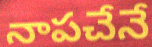
నాపచేనే